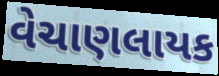
વેચાણલાયક